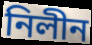
নিলীন